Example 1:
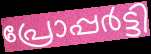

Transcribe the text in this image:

പ്രോപ്പർട്ടി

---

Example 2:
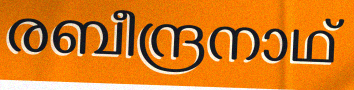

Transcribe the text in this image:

രബീന്ദ്രനാഥ്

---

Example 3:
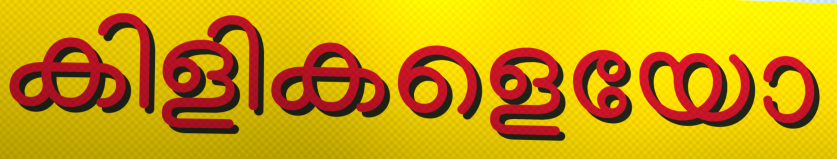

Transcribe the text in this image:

കിളികളെയോ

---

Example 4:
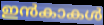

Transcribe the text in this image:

ഇൻകാകൾ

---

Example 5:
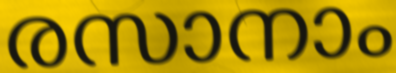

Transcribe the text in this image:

രസാനാം